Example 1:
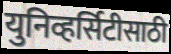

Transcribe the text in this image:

युनिव्हर्सिटीसाठी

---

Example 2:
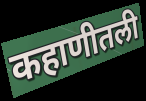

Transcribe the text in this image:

कहाणीतली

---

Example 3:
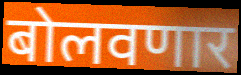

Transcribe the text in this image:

बोलवणार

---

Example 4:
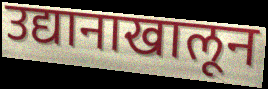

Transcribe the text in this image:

उद्यानाखालून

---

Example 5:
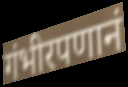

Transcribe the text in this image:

गंभीरपणानं